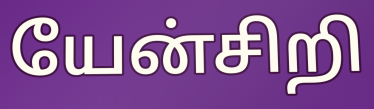
யேன்சிறி